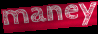
maney